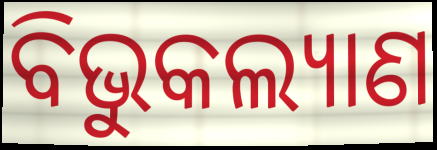
ବିଭୁକଲ୍ୟାଣ